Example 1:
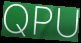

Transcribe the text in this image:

QPU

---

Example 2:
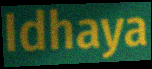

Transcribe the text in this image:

Idhaya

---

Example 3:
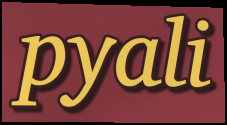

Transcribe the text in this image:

pyali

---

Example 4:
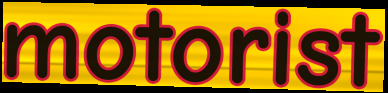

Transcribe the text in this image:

motorist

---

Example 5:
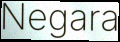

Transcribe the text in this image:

Negara